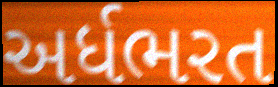
અર્ધભરત